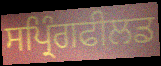
ਸਪ੍ਰਿੰਗਫੀਲਡ